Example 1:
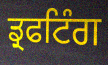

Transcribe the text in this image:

ਡ੍ਰਫਟਿੰਗ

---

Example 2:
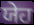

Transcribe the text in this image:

ਯੇਹ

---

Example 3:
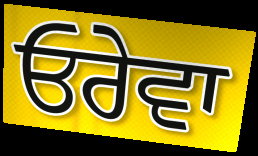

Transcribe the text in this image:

ਓਰੇਵਾ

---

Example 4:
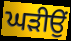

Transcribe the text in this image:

ਘੜੀਉਂ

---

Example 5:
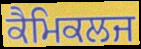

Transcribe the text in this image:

ਕੈਮਿਕਲਜ